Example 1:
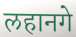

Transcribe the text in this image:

लहानगे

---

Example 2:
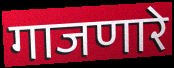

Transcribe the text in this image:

गाजणारे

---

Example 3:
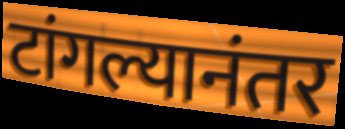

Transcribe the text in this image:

टांगल्यानंतर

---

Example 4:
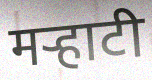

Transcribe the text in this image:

मर्‍हाटी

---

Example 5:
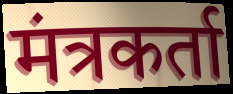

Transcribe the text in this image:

मंत्रकर्ता